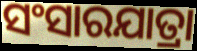
ସଂସାରଯାତ୍ରା